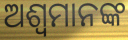
ଅଶ୍ୱମାନଙ୍କ